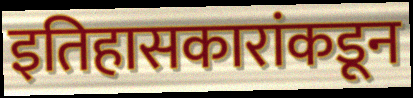
इतिहासकारांकडून